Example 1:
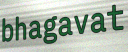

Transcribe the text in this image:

bhagavat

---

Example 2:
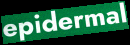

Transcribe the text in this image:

epidermal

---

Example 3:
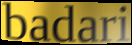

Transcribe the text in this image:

badari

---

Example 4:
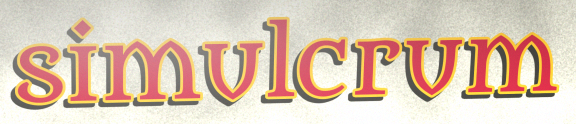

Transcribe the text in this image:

simulcrum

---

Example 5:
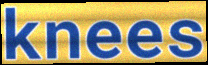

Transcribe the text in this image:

knees